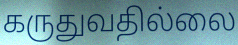
கருதுவதில்லை